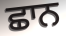
ਛਾਨ